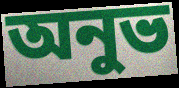
অনুভ